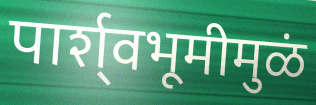
पार्श्वभूमीमुळं